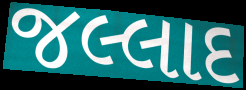
જલ્લાદ